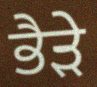
ਭੈਡ਼ੇ